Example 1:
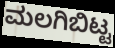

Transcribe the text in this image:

ಮಲಗಿಬಿಟ್ಟ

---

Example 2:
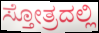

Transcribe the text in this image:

ಸ್ತೋತ್ರದಲ್ಲಿ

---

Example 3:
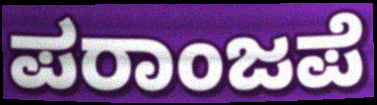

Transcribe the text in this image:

ಪರಾಂಜಪೆ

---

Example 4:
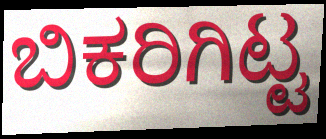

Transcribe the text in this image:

ಬಿಕರಿಗಿಟ್ಟ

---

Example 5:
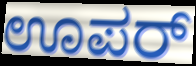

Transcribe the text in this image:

ಊಪರ್